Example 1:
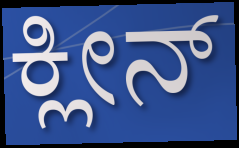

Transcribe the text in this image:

ಕ್ಲೀನ್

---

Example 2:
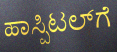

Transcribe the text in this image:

ಹಾಸ್ಪಿಟಲ್‌ಗೆ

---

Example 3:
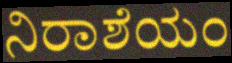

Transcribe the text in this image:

ನಿರಾಶೆಯಂ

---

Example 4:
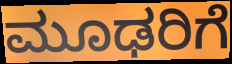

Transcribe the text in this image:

ಮೂಢರಿಗೆ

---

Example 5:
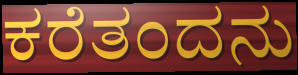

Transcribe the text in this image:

ಕರೆತಂದನು